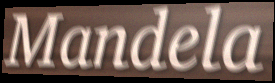
Mandela